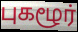
புகழூர்